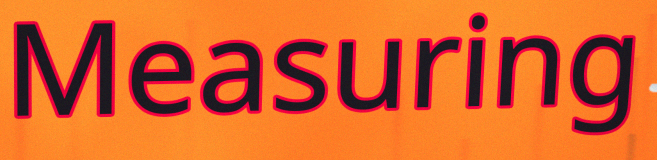
Measuring